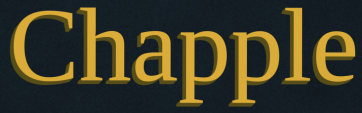
Chapple